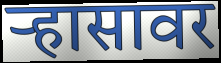
ऱ्हासावर